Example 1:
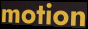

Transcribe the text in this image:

motion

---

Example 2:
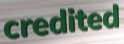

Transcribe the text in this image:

credited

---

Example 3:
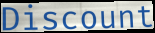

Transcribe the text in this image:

Discount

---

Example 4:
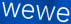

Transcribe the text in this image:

wewe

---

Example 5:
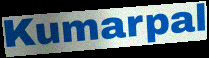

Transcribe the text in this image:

Kumarpal